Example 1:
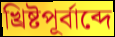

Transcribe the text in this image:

খ্রিষ্টপূর্বাব্দে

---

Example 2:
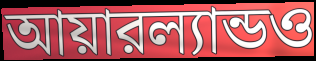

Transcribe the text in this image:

আয়ারল্যান্ডও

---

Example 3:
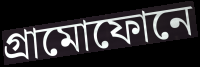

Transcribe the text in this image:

গ্রামোফোনে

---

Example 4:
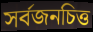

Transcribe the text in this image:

সর্বজনচিত্ত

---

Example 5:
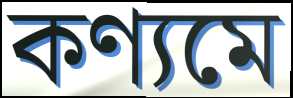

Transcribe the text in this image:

কণ্যমে